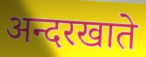
अन्दरखाते